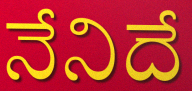
నేనిదే